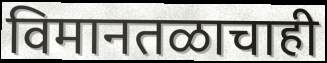
विमानतळाचाही